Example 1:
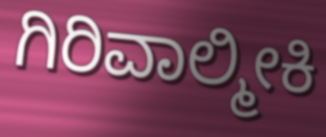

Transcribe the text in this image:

ಗಿರಿವಾಲ್ಮೀಕಿ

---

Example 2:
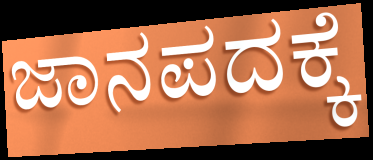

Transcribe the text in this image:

ಜಾನಪದಕ್ಕೆ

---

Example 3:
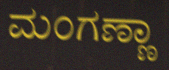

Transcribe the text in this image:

ಮಂಗಣ್ಣಾ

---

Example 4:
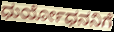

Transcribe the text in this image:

ಧುರ್ಯೋಧನನಿಗೆ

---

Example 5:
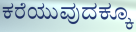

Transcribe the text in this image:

ಕರೆಯುವುದಕ್ಕೂ